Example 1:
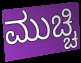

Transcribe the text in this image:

ಮುಚ್ಚಿ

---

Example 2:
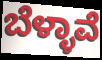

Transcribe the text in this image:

ಬೆಳ್ಳಾವೆ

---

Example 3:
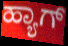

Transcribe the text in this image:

ಹ್ಯಾಗ್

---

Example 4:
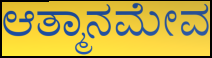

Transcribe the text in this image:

ಆತ್ಮಾನಮೇವ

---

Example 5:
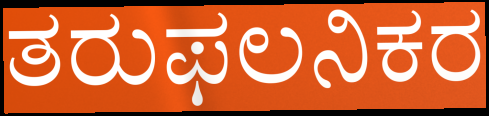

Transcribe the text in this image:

ತರುಫಲನಿಕರ